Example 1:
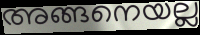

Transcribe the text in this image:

അങ്ങനെയല്ല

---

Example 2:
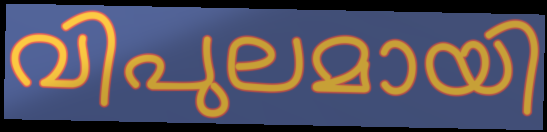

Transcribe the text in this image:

വിപുലമായി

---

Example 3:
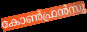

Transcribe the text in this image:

കോൺഫ്രൻസു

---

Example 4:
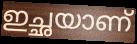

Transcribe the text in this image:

ഇച്ഛയാണ്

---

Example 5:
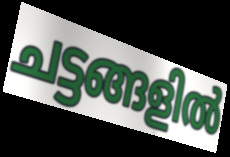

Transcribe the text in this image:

ചട്ടങ്ങളിൽ